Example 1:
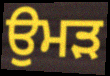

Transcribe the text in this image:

ਉਮੜ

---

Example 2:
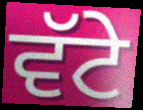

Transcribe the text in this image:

ਵੱਟੇ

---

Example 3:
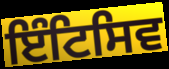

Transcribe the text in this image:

ਇੰਟਿਸਿਵ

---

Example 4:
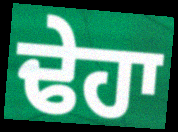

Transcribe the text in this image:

ਢੇਹਾ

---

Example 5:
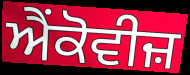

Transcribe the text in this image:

ਐਂਕੋਵੀਜ਼